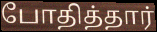
போதித்தார்